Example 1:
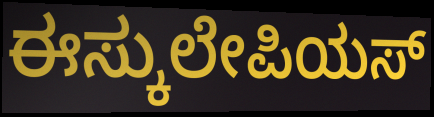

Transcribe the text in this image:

ಈಸ್ಕುಲೇಪಿಯಸ್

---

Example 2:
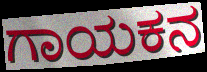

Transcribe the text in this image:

ಗಾಯಕನ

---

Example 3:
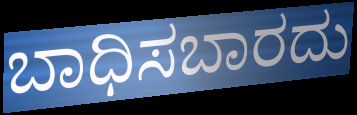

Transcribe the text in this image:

ಬಾಧಿಸಬಾರದು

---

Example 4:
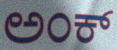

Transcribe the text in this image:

ಅಂಕ್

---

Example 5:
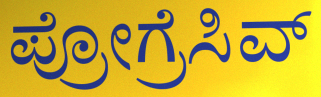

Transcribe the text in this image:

ಪ್ರೋಗ್ರೆಸಿವ್